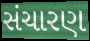
સંચારણ